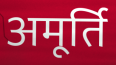
अमूर्ति